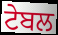
ਟੇਬਲ